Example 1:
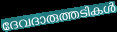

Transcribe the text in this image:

ദേവദാരുത്തടികൾ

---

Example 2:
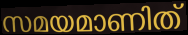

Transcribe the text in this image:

സമയമാണിത്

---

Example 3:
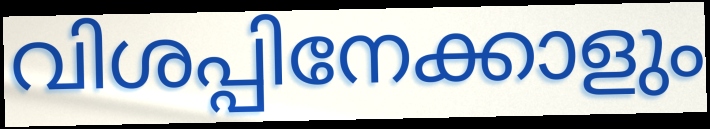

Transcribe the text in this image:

വിശപ്പിനേക്കാളും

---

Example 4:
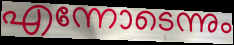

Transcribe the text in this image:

എന്നോടെന്നും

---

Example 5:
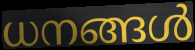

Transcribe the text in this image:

ധനങ്ങൾ